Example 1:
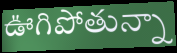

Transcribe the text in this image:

ఊగిపోతున్నా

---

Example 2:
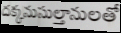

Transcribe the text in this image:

దక్కనుసుల్తానులతో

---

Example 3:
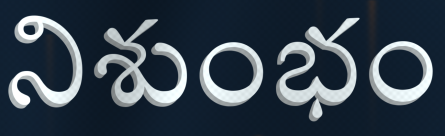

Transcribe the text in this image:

నిశుంభం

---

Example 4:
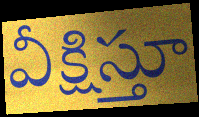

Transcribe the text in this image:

వీక్షిస్తూ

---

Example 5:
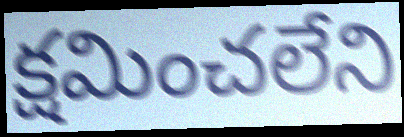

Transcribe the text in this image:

క్షమించలేని